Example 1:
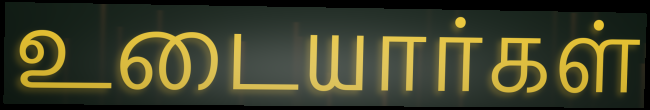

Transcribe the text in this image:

உடையார்கள்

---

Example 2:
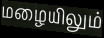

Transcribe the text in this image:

மழையிலும்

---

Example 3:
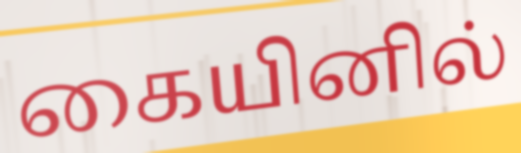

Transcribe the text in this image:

கையினில்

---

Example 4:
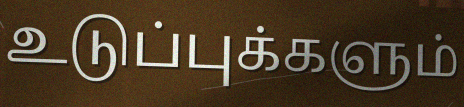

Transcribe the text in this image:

உடுப்புக்களும்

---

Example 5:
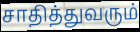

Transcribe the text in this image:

சாதித்துவரும்